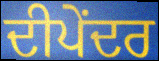
ਦੀਪੇਂਦਰ